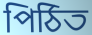
পিঠিত